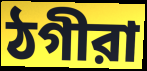
ঠগীরা